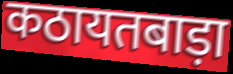
कठायतबाड़ा